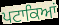
ਪਟਾਕਿਆਂ